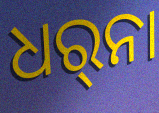
ଧର୍‌ନା